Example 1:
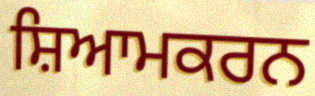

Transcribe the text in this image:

ਸ਼ਿਆਮਕਰਨ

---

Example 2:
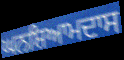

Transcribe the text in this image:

ਘਨਸ਼ਿਆਮਦਾਸ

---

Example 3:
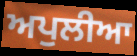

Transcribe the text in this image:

ਅਪੁਲੀਆ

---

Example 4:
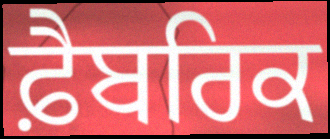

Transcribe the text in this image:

ਫ਼ੈਬਰਿਕ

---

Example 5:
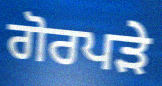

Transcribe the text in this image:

ਗੋਰਪੜੇ